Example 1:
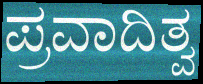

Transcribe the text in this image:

ಪ್ರವಾದಿತ್ವ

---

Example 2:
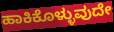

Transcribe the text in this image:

ಹಾಕಿಕೊಳ್ಳುವುದೇ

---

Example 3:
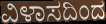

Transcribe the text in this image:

ವಿಳಾಸದಿಂದ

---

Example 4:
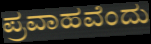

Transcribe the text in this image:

ಪ್ರವಾಹವೆಂದು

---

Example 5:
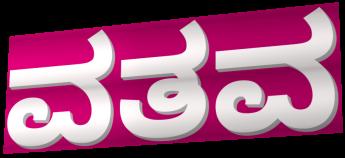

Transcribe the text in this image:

ವತವ